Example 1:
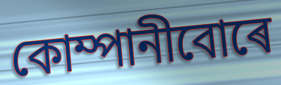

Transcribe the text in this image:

কোম্পানীবোৰে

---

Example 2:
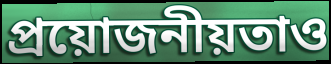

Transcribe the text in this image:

প্ৰয়োজনীয়তাও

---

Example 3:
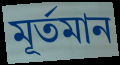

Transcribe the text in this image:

মূৰ্তমান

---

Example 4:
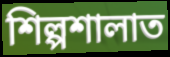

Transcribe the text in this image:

শিল্পশালাত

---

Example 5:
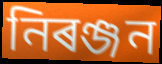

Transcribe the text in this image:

নিৰঞ্জন